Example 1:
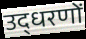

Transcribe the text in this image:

उद्धरणों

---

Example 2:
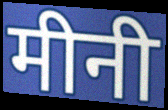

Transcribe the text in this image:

मीनी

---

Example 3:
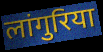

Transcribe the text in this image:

लांगुरिया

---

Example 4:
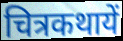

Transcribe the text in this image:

चित्रकथायें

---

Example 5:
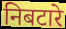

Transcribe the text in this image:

निबटारे